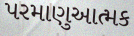
પરમાણુઆત્મક